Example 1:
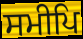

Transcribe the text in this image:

ਸਮੀਪਿ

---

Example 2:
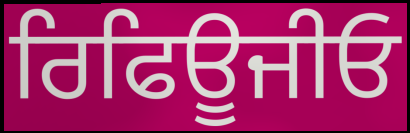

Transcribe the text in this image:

ਰਿਫਿਊਜੀਓ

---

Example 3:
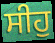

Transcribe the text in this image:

ਸੀਹੁ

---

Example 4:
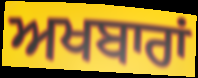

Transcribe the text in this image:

ਅਖਬਾਰਾਂ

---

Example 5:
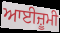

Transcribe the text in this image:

ਆਈਜ਼ੂਮੀ